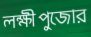
লক্ষীপুজোর